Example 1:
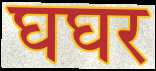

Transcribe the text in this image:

घघर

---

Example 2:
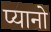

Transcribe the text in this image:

प्यानो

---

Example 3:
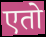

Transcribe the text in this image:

एतो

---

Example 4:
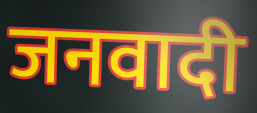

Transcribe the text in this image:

जनवादी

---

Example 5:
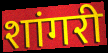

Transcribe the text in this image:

शांगरी